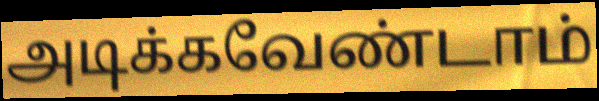
அடிக்கவேண்டாம்